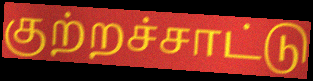
குற்றச்சாட்டு